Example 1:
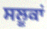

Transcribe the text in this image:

ਸਲੂਕਾਂ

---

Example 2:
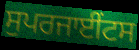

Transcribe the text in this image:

ਸੁਪਰਜਾਈਂਟਸ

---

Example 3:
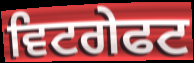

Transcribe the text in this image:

ਵਿਟਗੇਫਟ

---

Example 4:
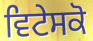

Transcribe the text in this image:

ਵਿਟੇਸਕੋ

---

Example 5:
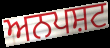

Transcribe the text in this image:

ਅਨਪਸ਼ਟ